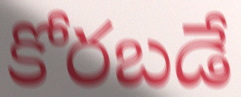
కోరబడే